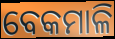
ବେକମାଳି